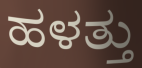
ಹಳತ್ತು